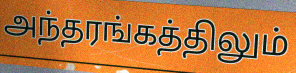
அந்தரங்கத்திலும்